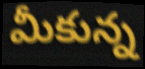
మీకున్న